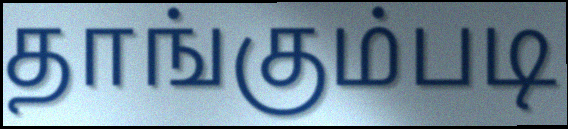
தாங்கும்படி